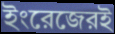
ইংরেজেরই